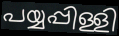
പയ്യപ്പിള്ളി